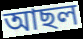
আছল